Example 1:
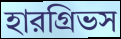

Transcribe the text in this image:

হারগ্রিভস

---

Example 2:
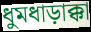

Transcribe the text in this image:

ধুমধাড়াক্কা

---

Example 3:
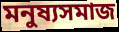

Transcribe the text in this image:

মনুষ্যসমাজ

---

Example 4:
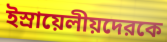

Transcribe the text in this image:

ইস্রায়েলীয়দেরকে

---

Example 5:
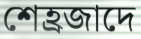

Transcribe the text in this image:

শেহ্রজাদে